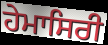
ਹੇਮਾਸਿਰੀ